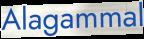
Alagammal